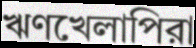
ঋণখেলাপিরা